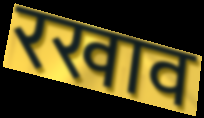
रखाव